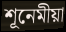
শূনেমীয়া